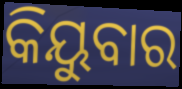
କିୟୁବାର